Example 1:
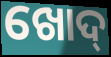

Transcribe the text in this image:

ଖୋଦ୍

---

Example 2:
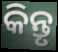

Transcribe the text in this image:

କିନ୍ତୃ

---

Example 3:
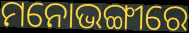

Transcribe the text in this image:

ମନୋଭଙ୍ଗୀରେ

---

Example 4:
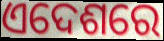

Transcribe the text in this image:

ଏଦେଶରେ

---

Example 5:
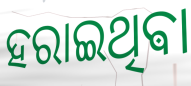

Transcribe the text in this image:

ହରାଇଥିଵା